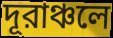
দূরাঞ্চলে